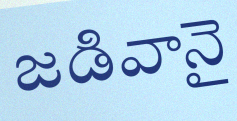
జడివానై